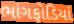
ભાંગફોડિયાં